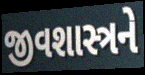
જીવશાસ્ત્રને